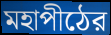
মহাপীঠের